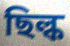
ছিল্ক